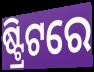
ଷ୍ଟ୍ରିଟରେ